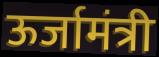
ऊर्जामंत्री